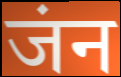
जंन